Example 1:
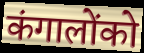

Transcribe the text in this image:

कंगालोंको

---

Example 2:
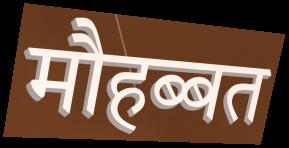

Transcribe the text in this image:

मौहब्बत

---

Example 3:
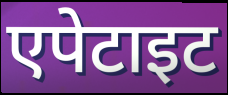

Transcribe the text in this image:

एपेटाइट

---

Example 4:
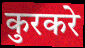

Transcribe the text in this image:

कुरकरे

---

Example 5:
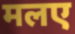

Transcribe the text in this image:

मलए